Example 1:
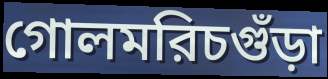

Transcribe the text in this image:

গোলমরিচগুঁড়া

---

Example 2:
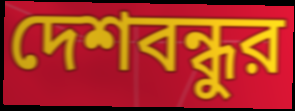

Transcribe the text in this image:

দেশবন্ধুর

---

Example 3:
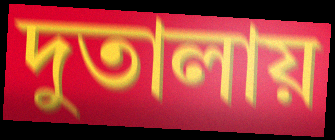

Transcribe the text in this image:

দুতালায়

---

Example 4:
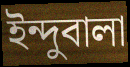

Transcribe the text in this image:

ইন্দুবালা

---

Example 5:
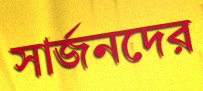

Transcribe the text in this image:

সার্জনদের